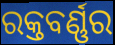
ରକ୍ତବର୍ଣ୍ଣର